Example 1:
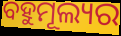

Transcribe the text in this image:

ବହୁମୂଲ୍ୟର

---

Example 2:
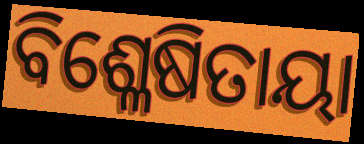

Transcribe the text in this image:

ବିଶ୍ଳେଷିତାୟା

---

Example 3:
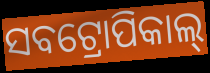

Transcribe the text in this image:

ସବଟ୍ରୋପିକାଲ୍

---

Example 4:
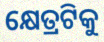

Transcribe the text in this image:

କ୍ଷେତ୍ରଟିକୁ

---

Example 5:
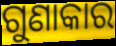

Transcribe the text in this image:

ଗୁଣାକାର